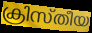
ക്രിസ്‌തീയ